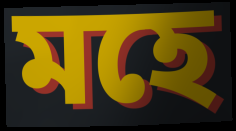
মহে